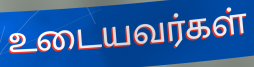
உடையவர்கள்